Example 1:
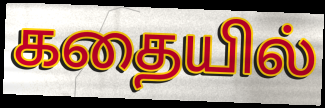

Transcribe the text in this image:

கதையில்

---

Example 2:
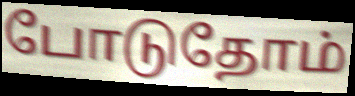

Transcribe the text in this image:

போடுதோம்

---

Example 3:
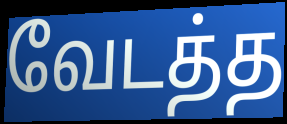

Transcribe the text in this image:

வேடத்த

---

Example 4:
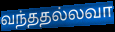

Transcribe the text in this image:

வந்ததல்லவா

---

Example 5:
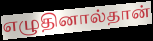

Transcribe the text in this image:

எழுதினால்தான்